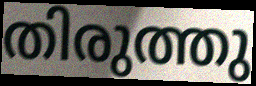
തിരുത്തു